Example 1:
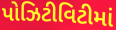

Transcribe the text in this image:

પોઝિટીવિટીમાં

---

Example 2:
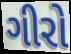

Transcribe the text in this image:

ગીરો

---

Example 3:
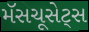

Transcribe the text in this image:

મૅસચૂસેટ્સ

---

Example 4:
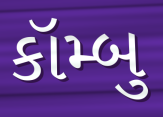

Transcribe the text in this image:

કૉમ્બુ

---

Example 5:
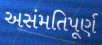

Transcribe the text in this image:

અસંમતિપૂર્ણ